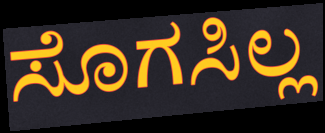
ಸೊಗಸಿಲ್ಲ